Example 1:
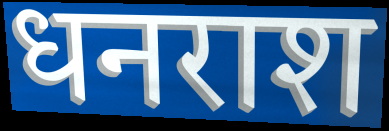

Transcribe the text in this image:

धनराश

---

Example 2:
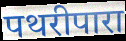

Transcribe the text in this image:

पथरीपारा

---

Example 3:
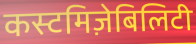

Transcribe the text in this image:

कस्टमिज़ेबिलिटी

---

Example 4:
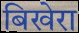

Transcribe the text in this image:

बिखेरा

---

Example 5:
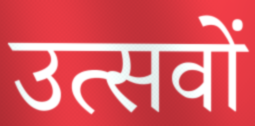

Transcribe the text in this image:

उत्सवों